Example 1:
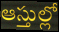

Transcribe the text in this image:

ఆస్తుల్లో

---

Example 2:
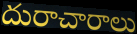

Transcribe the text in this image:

దురాచారాలు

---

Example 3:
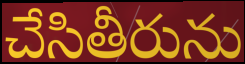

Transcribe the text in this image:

చేసితీరును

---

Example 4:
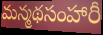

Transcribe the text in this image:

మన్మథసంహారీ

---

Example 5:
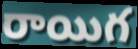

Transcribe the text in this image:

రాయిగ